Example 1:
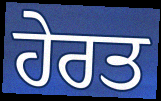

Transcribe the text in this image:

ਹੇਰਤ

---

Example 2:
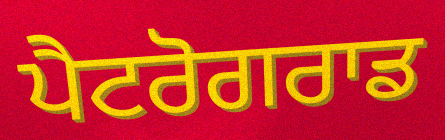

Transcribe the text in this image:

ਪੈਟਰੋਗਰਾਡ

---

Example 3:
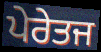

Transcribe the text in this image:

ਪੇਰੇਤਜ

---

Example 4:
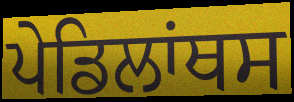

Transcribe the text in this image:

ਪੇਡਿਲਾਂਥਸ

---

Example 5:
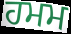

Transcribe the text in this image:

ਹਮਮ